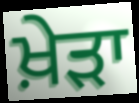
ਖ਼ੇੜਾ